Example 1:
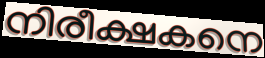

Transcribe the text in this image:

നിരീക്ഷകനെ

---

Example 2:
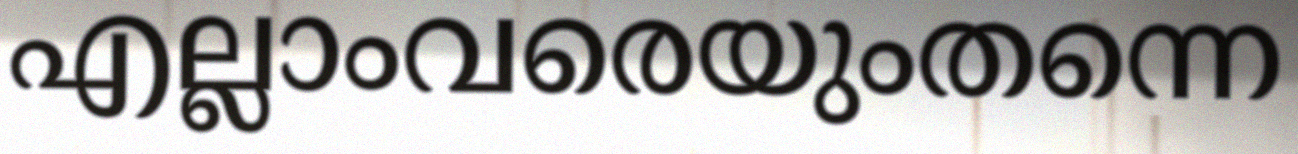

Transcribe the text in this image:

എല്ലാംവരെയുംതന്നെ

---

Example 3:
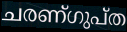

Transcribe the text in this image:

ചരണ്ഗുപ്ത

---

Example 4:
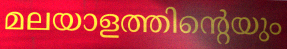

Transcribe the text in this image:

മലയാളത്തിന്റെയും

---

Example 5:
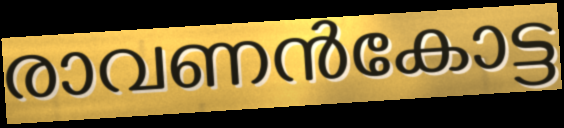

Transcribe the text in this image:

രാവണൻകോട്ട